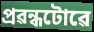
প্ৰৱন্ধটোৱে